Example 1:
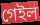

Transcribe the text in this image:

গেইল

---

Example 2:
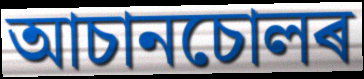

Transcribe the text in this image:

আচানচোলৰ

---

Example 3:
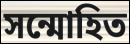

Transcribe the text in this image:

সন্মোহিত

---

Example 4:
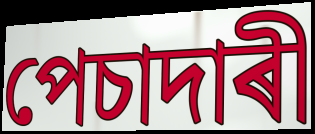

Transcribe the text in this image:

পেচাদাৰী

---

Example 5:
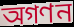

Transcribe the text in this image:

অগণন